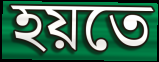
হয়তে